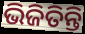
ଭିଜିତିନ୍ତି